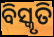
ବିସ୍କୃତି